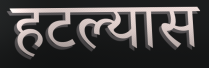
हटल्यास